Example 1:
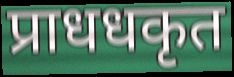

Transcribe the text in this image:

प्राधधकृत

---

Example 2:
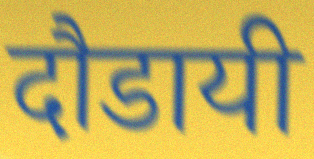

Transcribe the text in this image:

दौडायी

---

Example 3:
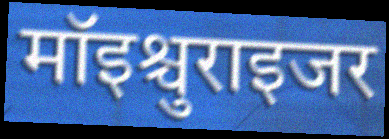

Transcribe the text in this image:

मॉइश्चुराइजर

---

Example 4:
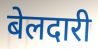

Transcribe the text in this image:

बेलदारी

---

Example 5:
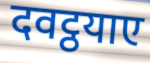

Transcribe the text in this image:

दवट्ठयाए